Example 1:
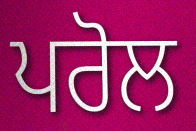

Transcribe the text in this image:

ਪਰੋਲ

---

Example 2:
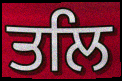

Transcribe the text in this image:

ਤਲਿ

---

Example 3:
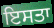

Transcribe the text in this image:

ਇਸਤਾ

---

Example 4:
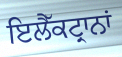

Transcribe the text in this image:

ਇਲੈੱਕਟ੍ਰਾਨਾਂ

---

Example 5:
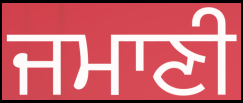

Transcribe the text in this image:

ਜਮਾਣੀ